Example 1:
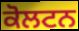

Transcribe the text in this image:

ਕੋਲਟਨ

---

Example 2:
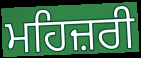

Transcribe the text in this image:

ਮਹਿਜ਼ਰੀ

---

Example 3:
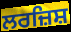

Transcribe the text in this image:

ਲਰਜ਼ਿਸ਼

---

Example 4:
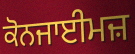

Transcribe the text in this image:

ਕੋਨਜਾਈਮਜ਼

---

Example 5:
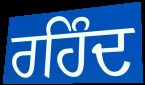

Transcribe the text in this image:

ਰਹਿੰਦ